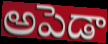
అపెడా